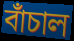
বাঁচাল